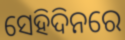
ସେହିଦିନରେ